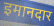
इमानदार